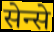
सेन्से